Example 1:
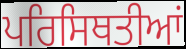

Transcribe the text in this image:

ਪਰਿਸਿਥਤੀਆਂ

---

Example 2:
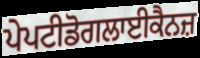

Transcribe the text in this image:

ਪੇਪਟੀਡੋਗਲਾਈਕੈਨਜ਼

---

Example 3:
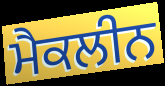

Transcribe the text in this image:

ਮੈਕਲੀਨ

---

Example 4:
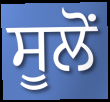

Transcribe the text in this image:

ਸੂਲੋਂ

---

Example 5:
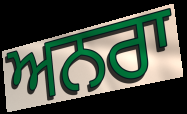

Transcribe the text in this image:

ਅਨਰਾ